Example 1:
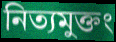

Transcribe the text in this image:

নিত্যমুক্তং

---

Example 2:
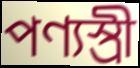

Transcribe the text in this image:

পণ্যস্ত্রী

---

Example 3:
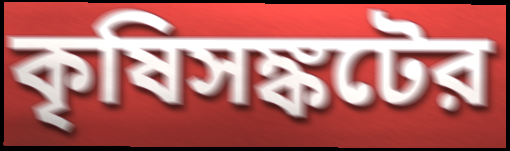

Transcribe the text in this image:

কৃষিসঙ্কটের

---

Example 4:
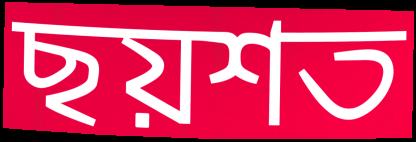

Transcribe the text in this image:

ছয়শত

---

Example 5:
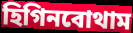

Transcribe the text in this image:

হিগিনবোথাম